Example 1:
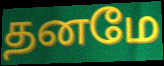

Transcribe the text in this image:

தனமே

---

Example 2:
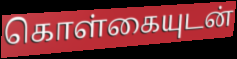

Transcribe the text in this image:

கொள்கையுடன்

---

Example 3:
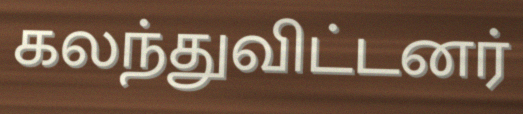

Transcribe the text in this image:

கலந்துவிட்டனர்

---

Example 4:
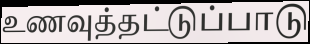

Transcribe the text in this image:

உணவுத்தட்டுப்பாடு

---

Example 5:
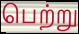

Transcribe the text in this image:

பெற்று